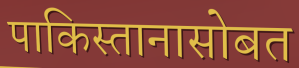
पाकिस्तानासोबत